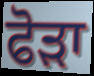
ਫੋੜਾ